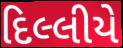
દિલ્લીયે